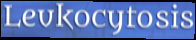
Leukocytosis